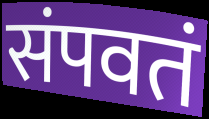
संपवतं